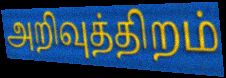
அறிவுத்திறம்